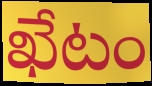
ఖేటం